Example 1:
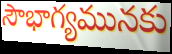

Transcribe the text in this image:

సౌభాగ్యమునకు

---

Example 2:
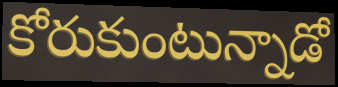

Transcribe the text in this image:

కోరుకుంటున్నాడో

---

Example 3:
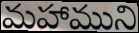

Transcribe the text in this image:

మహాముని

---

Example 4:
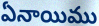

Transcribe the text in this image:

ఏనాయిము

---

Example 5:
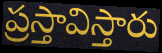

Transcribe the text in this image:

ప్రస్తావిస్తారు